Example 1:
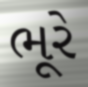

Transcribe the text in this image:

ભૂરે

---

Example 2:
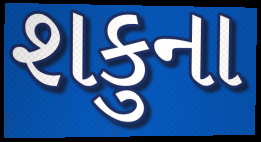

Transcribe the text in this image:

શકુના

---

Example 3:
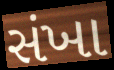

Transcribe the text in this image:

સંખા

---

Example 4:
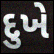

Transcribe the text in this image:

દુખે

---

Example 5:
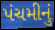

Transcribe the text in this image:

પંચમીનું